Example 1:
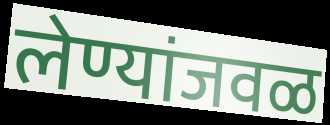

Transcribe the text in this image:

लेण्यांजवळ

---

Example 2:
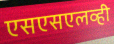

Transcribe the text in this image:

एसएसएलव्ही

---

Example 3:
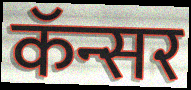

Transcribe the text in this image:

कॅन्सर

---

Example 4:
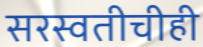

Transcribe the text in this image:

सरस्वतीचीही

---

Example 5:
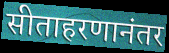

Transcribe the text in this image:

सीताहरणानंतर